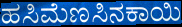
ಹಸಿಮೆಣಸಿನಕಾಯಿ